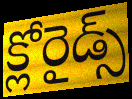
క్లోరైడ్స్